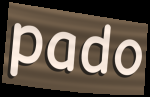
pado